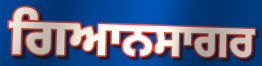
ਗਿਆਨਸਾਗਰ